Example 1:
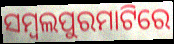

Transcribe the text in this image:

ସମ୍ବଲପୁରମାଟିରେ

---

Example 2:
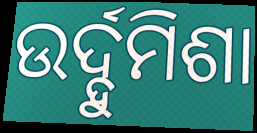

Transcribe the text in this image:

ଉର୍ଦ୍ଦୁମିଶା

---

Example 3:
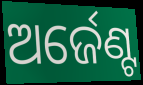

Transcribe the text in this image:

ଅର୍ଜେଣ୍ଟ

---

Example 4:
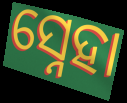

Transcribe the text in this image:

ସ୍ନେହା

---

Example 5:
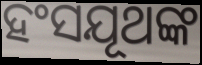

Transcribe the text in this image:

ହଂସଯୂଥଙ୍କ